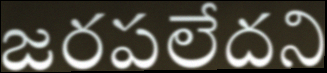
జరపలేదని